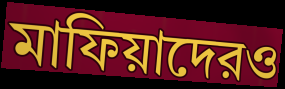
মাফিয়াদেরও